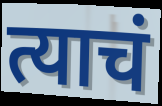
त्याचं